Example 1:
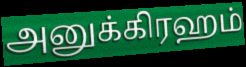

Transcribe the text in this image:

அனுக்கிரஹம்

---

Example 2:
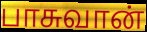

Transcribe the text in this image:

பாசுவான்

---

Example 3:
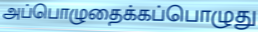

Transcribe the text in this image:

அப்பொழுதைக்கப்பொழுது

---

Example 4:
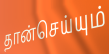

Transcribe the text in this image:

தான்செய்யும்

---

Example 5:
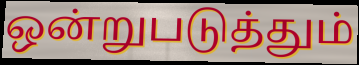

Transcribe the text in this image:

ஒன்றுபடுத்தும்